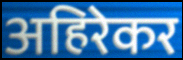
अहिरेकर